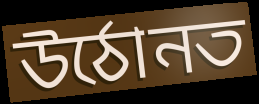
উঠোনত